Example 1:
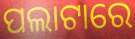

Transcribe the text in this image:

ପଲାଟାରେ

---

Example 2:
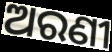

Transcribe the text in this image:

ଅରଣୀ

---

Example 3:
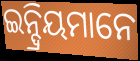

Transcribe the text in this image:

ଇନ୍ଦ୍ରିୟମାନେ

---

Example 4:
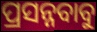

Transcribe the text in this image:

ପ୍ରସନ୍ନବାବୁ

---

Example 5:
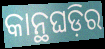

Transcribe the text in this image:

କାନ୍ଥଘଡ଼ିର